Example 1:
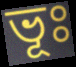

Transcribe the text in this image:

ভূঃ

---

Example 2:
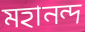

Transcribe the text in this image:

মহানন্দ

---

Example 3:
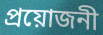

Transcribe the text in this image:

প্রয়োজনী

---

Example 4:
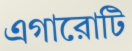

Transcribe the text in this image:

এগারোটি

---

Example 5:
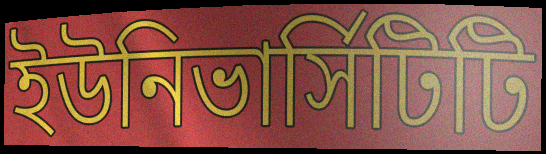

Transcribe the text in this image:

ইউনিভার্সিটিটি